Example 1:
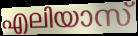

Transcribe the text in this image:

എലിയാസ്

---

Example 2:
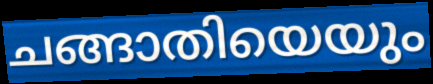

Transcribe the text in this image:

ചങ്ങാതിയെയും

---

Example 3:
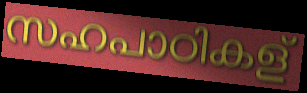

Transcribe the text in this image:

സഹപാഠികള്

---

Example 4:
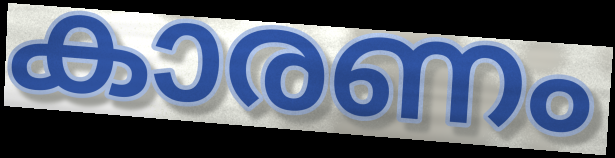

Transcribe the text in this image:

കാരണം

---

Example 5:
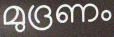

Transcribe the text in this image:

മുദ്രണം